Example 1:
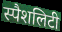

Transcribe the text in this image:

स्पैशलिटी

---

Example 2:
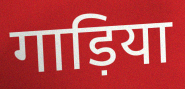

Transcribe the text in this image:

गाड़िया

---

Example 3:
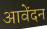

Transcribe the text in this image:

आवेंदन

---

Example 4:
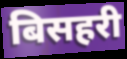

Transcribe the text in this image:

बिसहरी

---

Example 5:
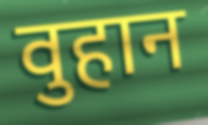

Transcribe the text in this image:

वुहान